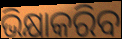
ଭିକ୍ଷାକରିବ